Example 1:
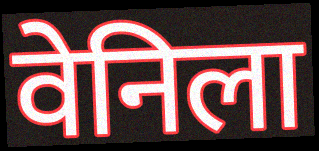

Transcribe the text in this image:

वेनिला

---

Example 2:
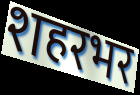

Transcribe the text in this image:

शहरभर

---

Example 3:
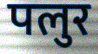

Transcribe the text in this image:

पलुर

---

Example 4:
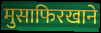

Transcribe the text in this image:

मुसाफिरखाने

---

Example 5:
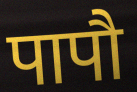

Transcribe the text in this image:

पापौ